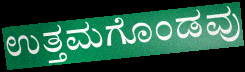
ಉತ್ತಮಗೊಂಡವು